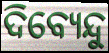
ଦିବ୍ୟେନ୍ଦୁ